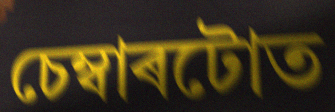
চেম্বাৰটোত